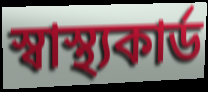
স্বাস্থ্যকার্ড